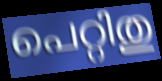
പെറ്റിതു